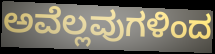
ಅವೆಲ್ಲವುಗಳಿಂದ